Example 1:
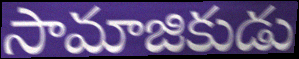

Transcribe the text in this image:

సామాజికుడు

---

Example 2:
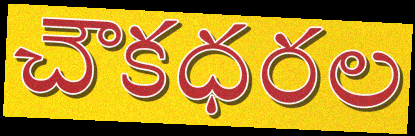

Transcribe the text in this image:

చౌకధరల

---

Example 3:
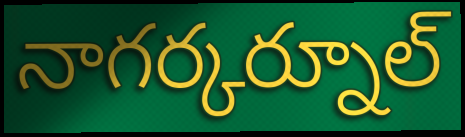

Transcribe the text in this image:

నాగర్కర్నూల్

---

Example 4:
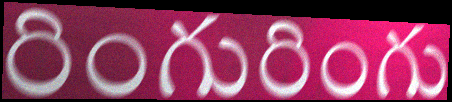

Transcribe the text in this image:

రింగురింగు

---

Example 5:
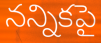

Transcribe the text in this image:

నన్నికపై